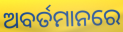
ଅବର୍ତମାନରେ